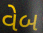
વેબ